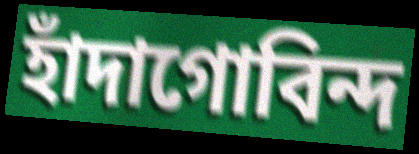
হাঁদাগোবিন্দ